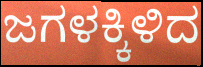
ಜಗಳಕ್ಕಿಳಿದ